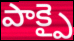
పాక్పై